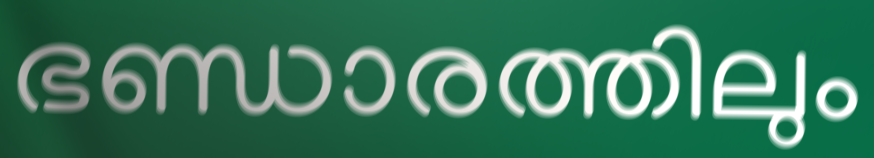
ഭണ്ഡാരത്തിലും